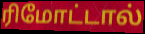
ரிமோட்டால்